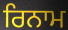
ਰਿਨਾਮ